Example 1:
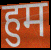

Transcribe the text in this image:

हुम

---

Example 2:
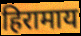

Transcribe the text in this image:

हिरामाय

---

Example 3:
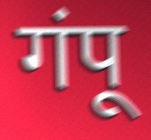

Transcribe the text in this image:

गंपू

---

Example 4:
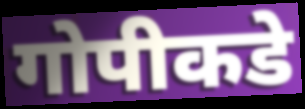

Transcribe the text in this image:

गोपीकडे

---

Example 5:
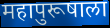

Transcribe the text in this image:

महापुरूषाला